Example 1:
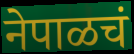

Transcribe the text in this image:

नेपाळचं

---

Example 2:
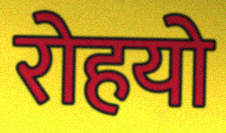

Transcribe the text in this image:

रोहयो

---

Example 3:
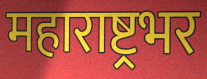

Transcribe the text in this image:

महाराष्ट्रभर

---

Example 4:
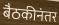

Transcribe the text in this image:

बैठकीनंतर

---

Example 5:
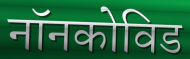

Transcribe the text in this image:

नॉनकोविड